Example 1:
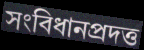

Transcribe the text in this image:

সংবিধানপ্রদত্ত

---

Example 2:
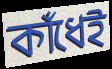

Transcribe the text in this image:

কাঁধেই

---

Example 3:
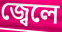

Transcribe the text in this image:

জ্বেলে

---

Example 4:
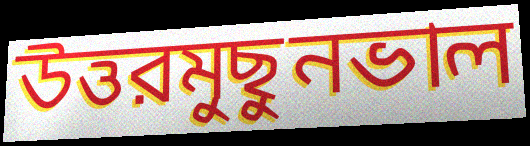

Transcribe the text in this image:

উত্তরমুছুনভাল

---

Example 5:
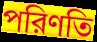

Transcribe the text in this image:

পরিণতি